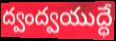
ద్వంద్వయుద్ధే